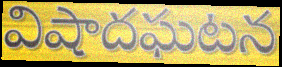
విషాదఘటన